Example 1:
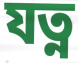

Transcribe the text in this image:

যত্ন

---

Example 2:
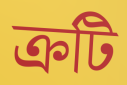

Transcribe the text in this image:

ক্রটি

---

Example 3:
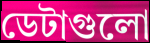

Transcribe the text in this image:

ডেটাগুলো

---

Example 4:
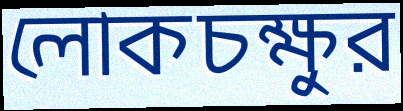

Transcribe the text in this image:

লোকচক্ষুর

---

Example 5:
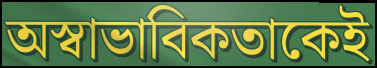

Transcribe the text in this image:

অস্বাভাবিকতাকেই